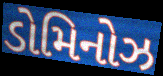
ડોમિનોઝ